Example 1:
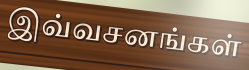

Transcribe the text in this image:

இவ்வசனங்கள்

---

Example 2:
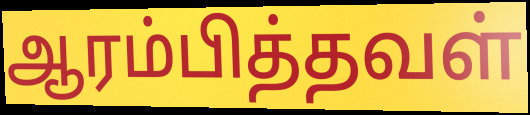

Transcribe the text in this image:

ஆரம்பித்தவள்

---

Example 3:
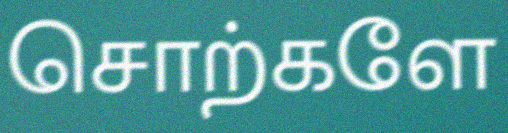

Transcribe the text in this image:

சொற்களே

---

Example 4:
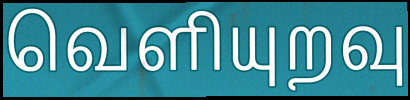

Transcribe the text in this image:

வெளியுறவு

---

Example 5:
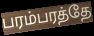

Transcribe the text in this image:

பரம்பரத்தே